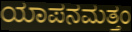
ಯಾಪನಮತ್ತಂ